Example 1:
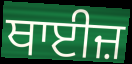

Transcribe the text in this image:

ਥਾਈਜ਼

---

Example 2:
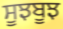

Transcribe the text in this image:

ਸੂਝਬੂਝ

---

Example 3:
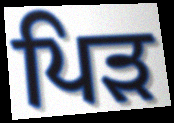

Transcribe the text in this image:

ਪਿੜ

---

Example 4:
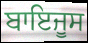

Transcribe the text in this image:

ਬਾਇਜੂਸ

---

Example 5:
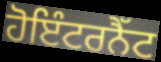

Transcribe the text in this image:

ਹੋਇੰਟਰਨੈੱਟ